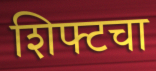
शिफ्टचा